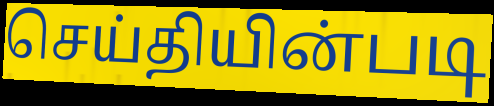
செய்தியின்படி